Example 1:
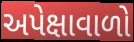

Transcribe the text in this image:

અપેક્ષાવાળો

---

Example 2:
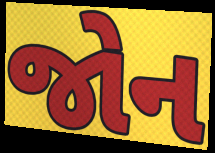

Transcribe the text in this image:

જોન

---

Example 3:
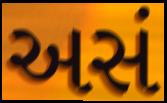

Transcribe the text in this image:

અસં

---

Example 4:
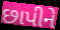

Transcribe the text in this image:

છાપીને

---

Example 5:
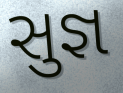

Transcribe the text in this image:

સુજ્ઞ